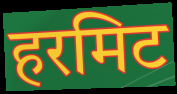
हरमिट